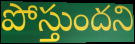
పోస్తుందని